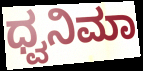
ಧ್ವನಿಮಾ